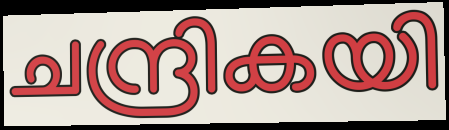
ചന്ദ്രികയി